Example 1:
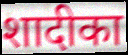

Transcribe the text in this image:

शादीका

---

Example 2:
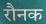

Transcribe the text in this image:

रौनक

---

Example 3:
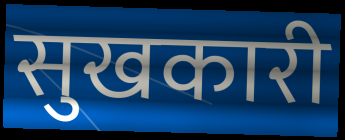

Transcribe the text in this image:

सुखकारी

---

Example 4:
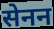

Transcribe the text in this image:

सेनन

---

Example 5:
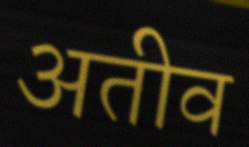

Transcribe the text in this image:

अतीव